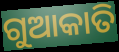
ଗୁଆକାତି